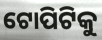
ଟୋପିଟିକୁ